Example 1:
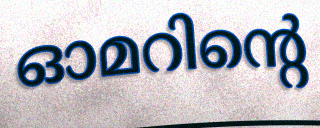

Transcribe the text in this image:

ഓമറിന്റെ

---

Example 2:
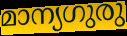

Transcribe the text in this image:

മാന്യഗുരു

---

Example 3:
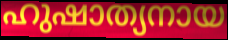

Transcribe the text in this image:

ഹുഷാത്യനായ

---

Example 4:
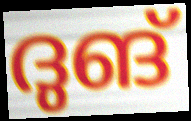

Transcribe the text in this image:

ദുങ്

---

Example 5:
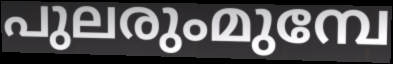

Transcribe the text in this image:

പുലരുംമുമ്പേ